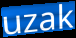
uzak